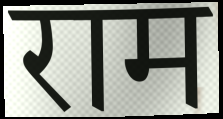
राम